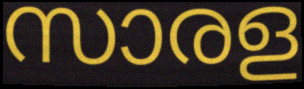
സാരള